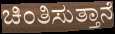
ಚಿಂತಿಸುತ್ತಾನೆ